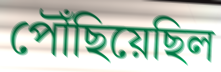
পৌঁছিয়েছিল